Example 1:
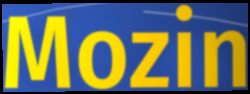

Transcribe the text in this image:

Mozin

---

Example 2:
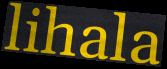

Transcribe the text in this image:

lihala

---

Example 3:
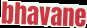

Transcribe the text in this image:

bhavane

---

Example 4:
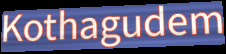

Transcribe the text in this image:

Kothagudem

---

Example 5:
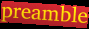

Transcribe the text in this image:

preamble